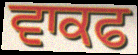
ਵਾਕਫ